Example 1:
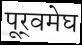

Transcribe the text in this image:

पूर्वमेघ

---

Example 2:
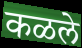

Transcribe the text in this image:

कळले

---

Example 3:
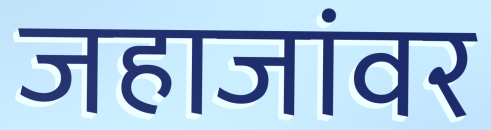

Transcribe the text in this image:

जहाजांवर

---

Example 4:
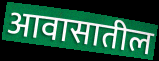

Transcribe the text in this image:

आवासातील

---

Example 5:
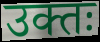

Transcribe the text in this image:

उक्तः